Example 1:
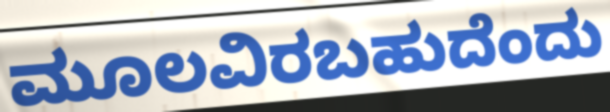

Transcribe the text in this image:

ಮೂಲವಿರಬಹುದೆಂದು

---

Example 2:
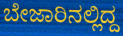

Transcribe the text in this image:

ಬೇಜಾರಿನಲ್ಲಿದ್ದ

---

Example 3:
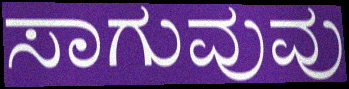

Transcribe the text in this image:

ಸಾಗುವುವು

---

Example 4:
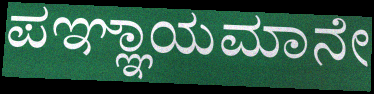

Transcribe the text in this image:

ಪಞ್ಞಾಯಮಾನೇ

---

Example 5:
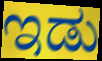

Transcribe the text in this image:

ಇಡು